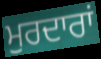
ਮੁਰਦਾਰਾਂ